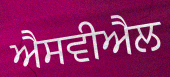
ਐਸਵੀਐਲ